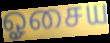
ஓசைய